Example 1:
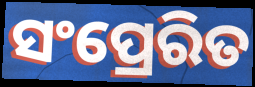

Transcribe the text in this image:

ସଂପ୍ରେରିତ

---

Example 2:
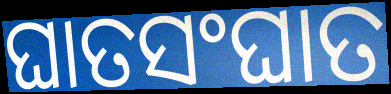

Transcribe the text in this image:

ଘାତସଂଘାତ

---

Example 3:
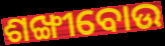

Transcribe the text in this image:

ଶଙ୍ଖୀବୋଉ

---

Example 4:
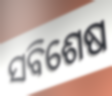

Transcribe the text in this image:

ସବିଶେଷ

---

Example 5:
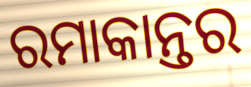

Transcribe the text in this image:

ରମାକାନ୍ତର